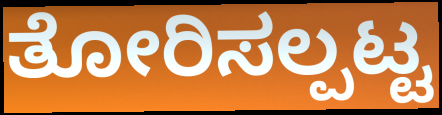
ತೋರಿಸಲ್ಪಟ್ಟ